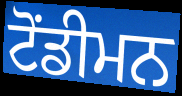
ਟੋਂਡੀਮਨ